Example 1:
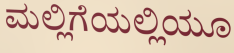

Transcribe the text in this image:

ಮಲ್ಲಿಗೆಯಲ್ಲಿಯೂ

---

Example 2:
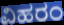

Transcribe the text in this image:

ವಿಹರಂ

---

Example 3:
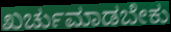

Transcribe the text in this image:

ಖರ್ಚುಮಾಡಬೇಕು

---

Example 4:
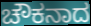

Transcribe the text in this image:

ಚೌಕನಾದ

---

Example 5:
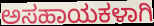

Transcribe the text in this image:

ಅಸಹಾಯಕಳಾಗಿ